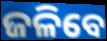
ଜଳିବେ